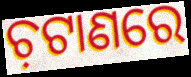
ଚ଼ଟାଣରେ